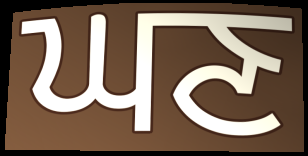
ਘਣ